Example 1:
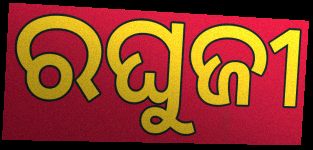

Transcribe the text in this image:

ରଘୁଜୀ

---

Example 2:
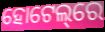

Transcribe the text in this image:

ହୋଟେଲ୍‌ରେ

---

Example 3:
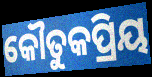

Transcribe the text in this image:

କୌତୁକପ୍ରିୟ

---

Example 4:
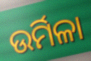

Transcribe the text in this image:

ଉର୍ମିଳା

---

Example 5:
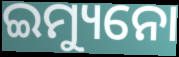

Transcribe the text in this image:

ଇମ୍ୟୁନୋ